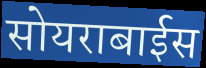
सोयराबाईस